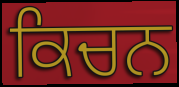
ਕਿਚਨ